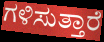
ಗಳಿಸುತ್ತಾರೆ